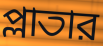
প্লাতার